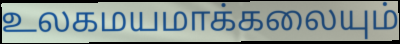
உலகமயமாக்கலையும்